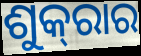
ଶୁକ୍‌ରାର